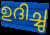
ഉദിച്ചു